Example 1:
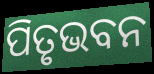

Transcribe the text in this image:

ପିତୃଭବନ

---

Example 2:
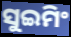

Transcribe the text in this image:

ସୁଇମିଂ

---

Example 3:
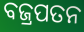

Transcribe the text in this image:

ବଜ୍ରପତନ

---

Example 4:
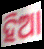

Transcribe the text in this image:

ହିଆ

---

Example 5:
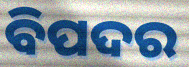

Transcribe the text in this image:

ବିପଦର